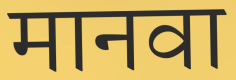
मानवा